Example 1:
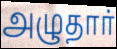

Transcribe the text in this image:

அழுதார்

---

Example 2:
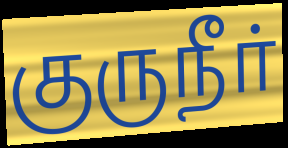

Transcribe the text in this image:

குருநீர்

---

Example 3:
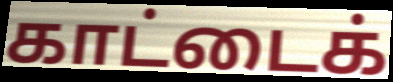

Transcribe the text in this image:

காட்டைக்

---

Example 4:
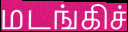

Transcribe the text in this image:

மடங்கிச்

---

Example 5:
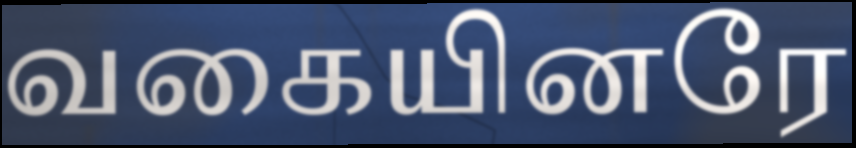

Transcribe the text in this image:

வகையினரே